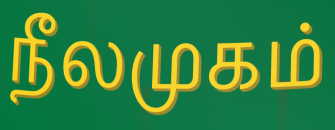
நீலமுகம்